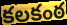
కలకంఠ